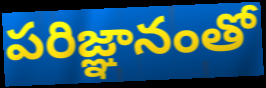
పరిజ్ఞానంతో